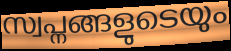
സ്വപ്നങ്ങളുടെയും